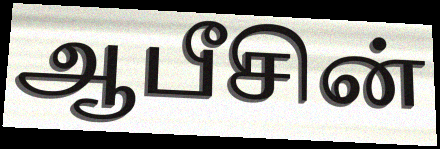
ஆபீசின்